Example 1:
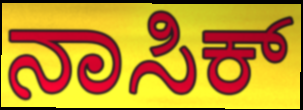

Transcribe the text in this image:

ನಾಸಿಕ್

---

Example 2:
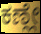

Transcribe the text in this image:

ಕಣ್ಲೇ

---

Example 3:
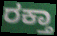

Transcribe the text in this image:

ರಕ್ತಾ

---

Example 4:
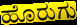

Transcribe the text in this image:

ಹೊರುಗು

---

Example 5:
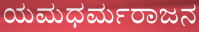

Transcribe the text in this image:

ಯಮಧರ್ಮರಾಜನ